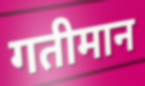
गतीमान